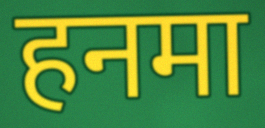
हनमा